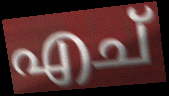
എച്